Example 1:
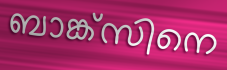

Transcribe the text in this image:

ബാങ്ക്സിനെ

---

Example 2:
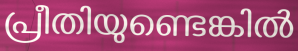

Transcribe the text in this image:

പ്രീതിയുണ്ടെങ്കിൽ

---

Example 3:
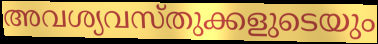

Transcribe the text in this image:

അവശ്യവസ്തുക്കളുടെയും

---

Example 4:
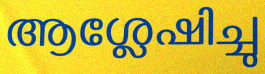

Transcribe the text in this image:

ആശ്ലേഷിച്ചു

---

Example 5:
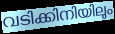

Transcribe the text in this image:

വടിക്കിനിയിലും